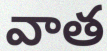
వాత